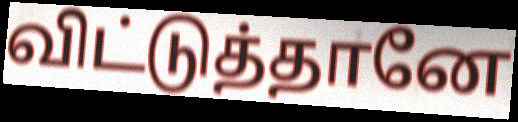
விட்டுத்தானே